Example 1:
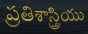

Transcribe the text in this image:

ప్రతిశాస్త్రియు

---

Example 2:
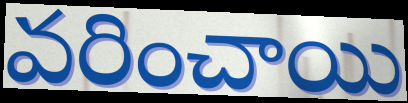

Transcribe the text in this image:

వరించాయి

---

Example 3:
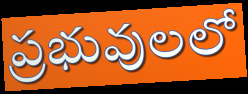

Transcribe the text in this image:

ప్రభువులలో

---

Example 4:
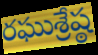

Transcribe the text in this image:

రఘుశ్రేష్ఠ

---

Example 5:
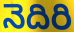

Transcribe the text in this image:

నెదిరి